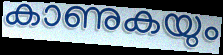
കാണുകയും